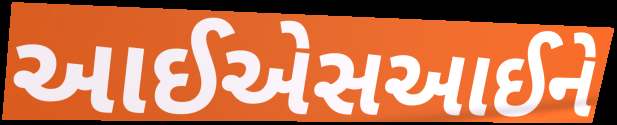
આઈએસઆઈને